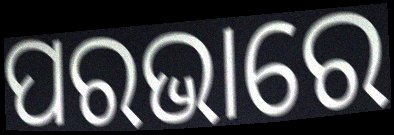
ପରଭାରେ